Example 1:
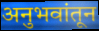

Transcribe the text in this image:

अनुभवांतून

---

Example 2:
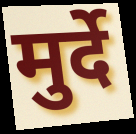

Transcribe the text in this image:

मुर्दे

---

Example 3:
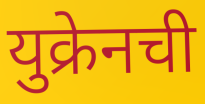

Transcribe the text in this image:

युक्रेनची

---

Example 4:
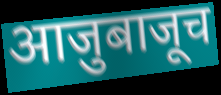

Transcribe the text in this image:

आजुबाजूच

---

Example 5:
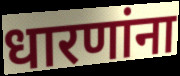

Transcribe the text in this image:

धारणांना